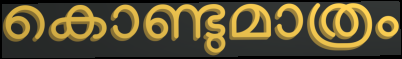
കൊണ്ടുമാത്രം